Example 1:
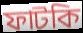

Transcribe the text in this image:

ফাটকি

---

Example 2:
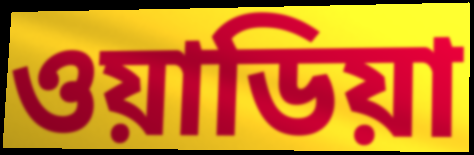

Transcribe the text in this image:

ওয়াডিয়া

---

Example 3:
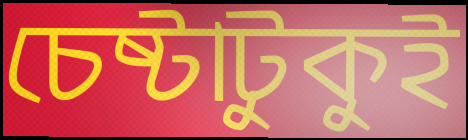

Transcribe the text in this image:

চেষ্টাটুকুই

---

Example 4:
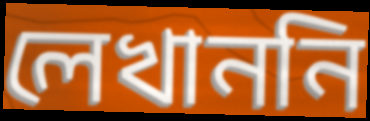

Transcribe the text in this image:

লেখাননি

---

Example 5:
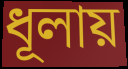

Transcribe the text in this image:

ধূলায়